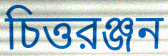
চিত্তরঞ্জন